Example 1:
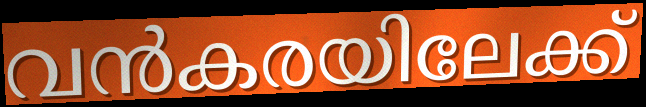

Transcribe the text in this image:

വൻകരയിലേക്ക്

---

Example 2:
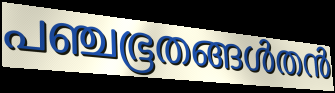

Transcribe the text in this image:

പഞ്ചഭൂതങ്ങൾതൻ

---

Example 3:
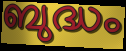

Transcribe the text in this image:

ബുദ്ധം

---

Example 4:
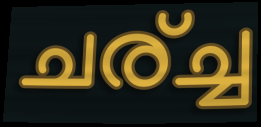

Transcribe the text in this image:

ചര്ച്ച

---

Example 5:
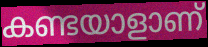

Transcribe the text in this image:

കണ്ടയാളാണ്